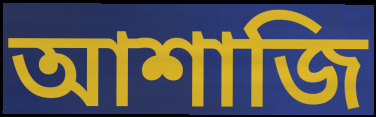
আশাজি